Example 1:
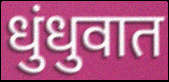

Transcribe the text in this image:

धुंधुवात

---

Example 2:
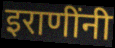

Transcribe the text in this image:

इराणींनी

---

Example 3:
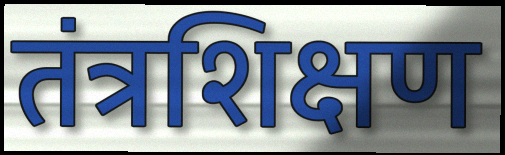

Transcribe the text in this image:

तंत्रशिक्षण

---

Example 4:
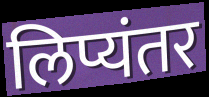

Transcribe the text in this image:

लिप्यंतर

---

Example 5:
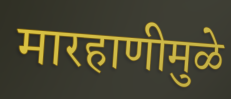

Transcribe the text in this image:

मारहाणीमुळे